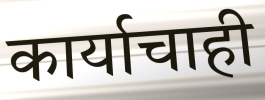
कार्याचाही